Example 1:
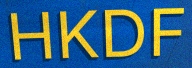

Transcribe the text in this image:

HKDF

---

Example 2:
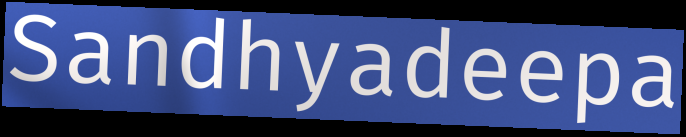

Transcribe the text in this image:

Sandhyadeepa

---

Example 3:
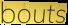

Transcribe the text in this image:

bouts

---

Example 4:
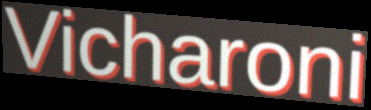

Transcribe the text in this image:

Vicharoni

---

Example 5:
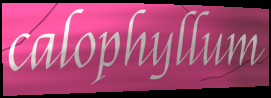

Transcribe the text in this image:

calophyllum